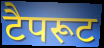
टैपरूट